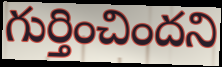
గుర్తించిందని